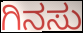
ಗಿನಸು